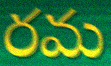
రమ